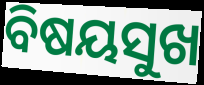
ବିଷୟସୁଖ